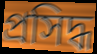
প্ৰসিদ্ধ